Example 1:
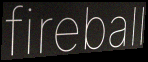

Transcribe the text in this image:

fireball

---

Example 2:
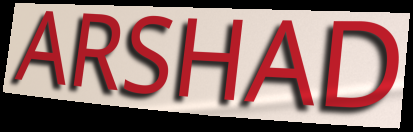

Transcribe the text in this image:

ARSHAD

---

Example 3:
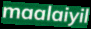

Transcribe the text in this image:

maalaiyil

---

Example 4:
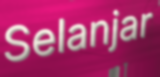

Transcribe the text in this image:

Selanjar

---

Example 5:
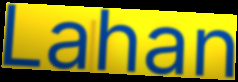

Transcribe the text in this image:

Lahan